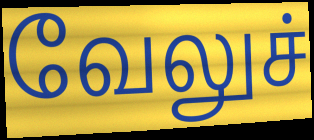
வேலுச்